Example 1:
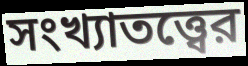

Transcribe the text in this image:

সংখ্যাতত্ত্বের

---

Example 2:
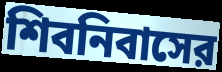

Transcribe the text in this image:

শিবনিবাসের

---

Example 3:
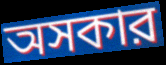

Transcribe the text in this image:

অসকার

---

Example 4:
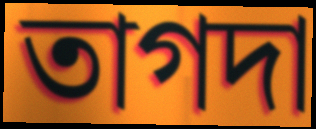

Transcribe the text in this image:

তাগদা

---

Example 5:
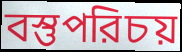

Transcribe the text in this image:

বস্তুপরিচয়